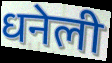
धनेली